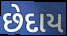
છેદાય